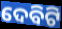
ଦେବିଟି